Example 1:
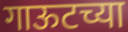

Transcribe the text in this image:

गाऊटच्या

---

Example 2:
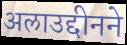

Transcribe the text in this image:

अलाउद्दीनने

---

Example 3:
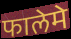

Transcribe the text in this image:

फालेमे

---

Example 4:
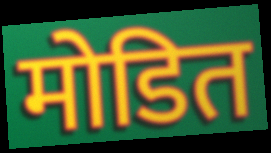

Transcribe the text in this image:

मोडित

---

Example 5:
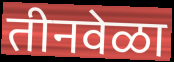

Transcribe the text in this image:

तीनवेळा